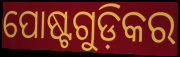
ପୋଷ୍ଟଗୁଡ଼ିକର